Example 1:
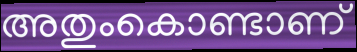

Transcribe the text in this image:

അതുംകൊണ്ടാണ്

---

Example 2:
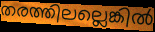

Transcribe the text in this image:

തരത്തിലല്ലെങ്കിൽ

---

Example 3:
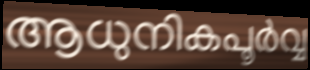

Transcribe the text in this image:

ആധുനികപൂർവ്വ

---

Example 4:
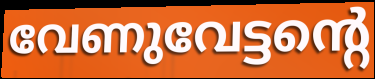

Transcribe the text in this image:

വേണുവേട്ടന്റെ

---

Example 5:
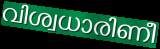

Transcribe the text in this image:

വിശ്വധാരിണീ